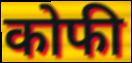
कोफी